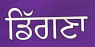
ਡਿੱਗਣਾ